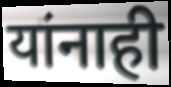
यांनाही